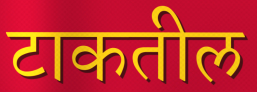
टाकतील